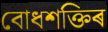
বোধশক্তিৰ